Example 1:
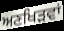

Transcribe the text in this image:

ਅਣਖਿੜਵਾਂ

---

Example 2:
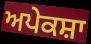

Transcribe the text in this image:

ਅਪੇਕਸ਼ਾ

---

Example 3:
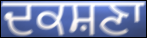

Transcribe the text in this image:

ਦਕਸ਼ਣਾ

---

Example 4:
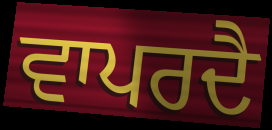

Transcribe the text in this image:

ਵਾਪਰਦੈ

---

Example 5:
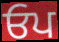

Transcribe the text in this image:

ਓਪ